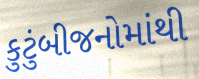
કુટુંબીજનોમાંથી